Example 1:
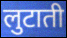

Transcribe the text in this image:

लुटाती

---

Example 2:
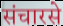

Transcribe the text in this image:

संचारसे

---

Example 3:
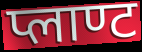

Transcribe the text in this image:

प्लाण्ट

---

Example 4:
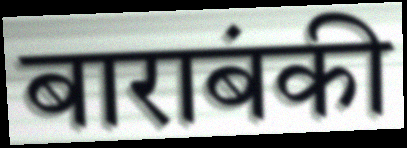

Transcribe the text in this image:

बाराबंकी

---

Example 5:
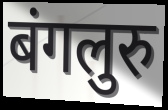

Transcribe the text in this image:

बंगलुरु